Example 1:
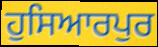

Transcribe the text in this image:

ਹੁਸਿਆਰਪੁਰ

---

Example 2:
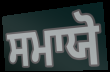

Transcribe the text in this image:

ਸਮਾਯੋ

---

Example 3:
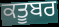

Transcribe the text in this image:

ਕਤੂਬਰ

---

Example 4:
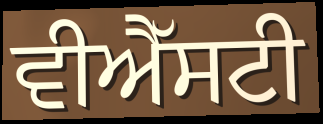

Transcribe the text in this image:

ਵੀਐੱਸਟੀ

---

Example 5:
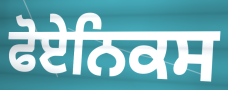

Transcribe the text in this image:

ਫੋਏਨਿਕਸ